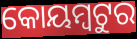
କୋୟମ୍ବଟୁର